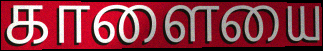
காளையை